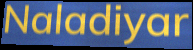
Naladiyar